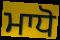
ਮਾਧੋ